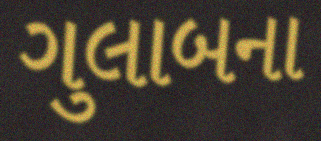
ગુલાબના